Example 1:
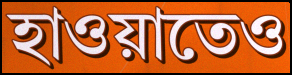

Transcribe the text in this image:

হাওয়াতেও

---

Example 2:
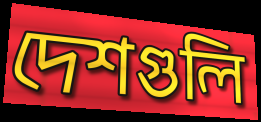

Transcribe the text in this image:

দেশগুলি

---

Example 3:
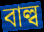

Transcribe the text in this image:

বাল্ব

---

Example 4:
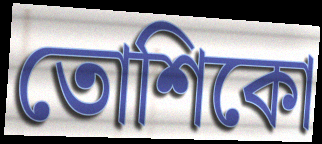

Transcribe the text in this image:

তোশিকো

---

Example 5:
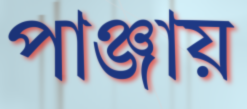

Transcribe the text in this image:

পাঞ্জায়